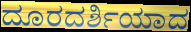
ದೂರದರ್ಶಿಯಾದ